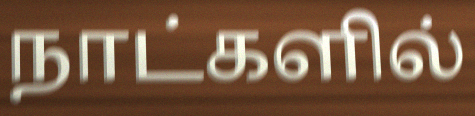
நாட்களில்